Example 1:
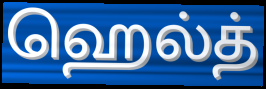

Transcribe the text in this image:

ஹெல்த்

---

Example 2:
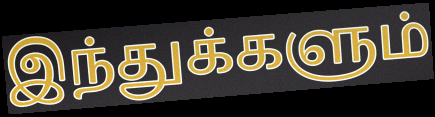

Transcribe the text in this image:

இந்துக்களும்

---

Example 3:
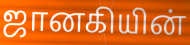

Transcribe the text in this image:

ஜானகியின்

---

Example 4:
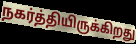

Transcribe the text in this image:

நகர்த்தியிருக்கிறது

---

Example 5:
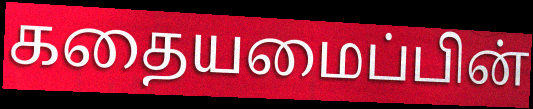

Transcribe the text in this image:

கதையமைப்பின்